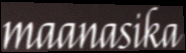
maanasika